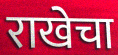
राखेचा